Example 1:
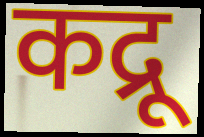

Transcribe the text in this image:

कद्रू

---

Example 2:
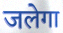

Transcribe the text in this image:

जलेगा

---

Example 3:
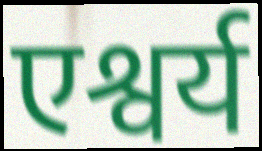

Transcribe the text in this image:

एश्वर्य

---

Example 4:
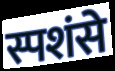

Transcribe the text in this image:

स्पशंसे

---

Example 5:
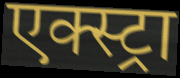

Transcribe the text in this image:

एक्स्ट्रा